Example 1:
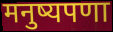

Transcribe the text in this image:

मनुष्यपणा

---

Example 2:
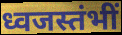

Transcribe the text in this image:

ध्वजस्तंभीं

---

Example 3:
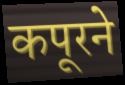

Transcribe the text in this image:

कपूरने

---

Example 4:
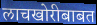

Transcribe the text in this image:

लाचखोरीबाबत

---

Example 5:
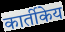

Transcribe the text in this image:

कार्तीकेय